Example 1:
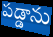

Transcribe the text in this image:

పడ్డాను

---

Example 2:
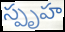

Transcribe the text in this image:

స్పృహ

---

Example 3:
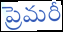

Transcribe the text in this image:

ప్రెమరీ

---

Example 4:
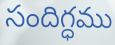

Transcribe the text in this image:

సందిగ్ధము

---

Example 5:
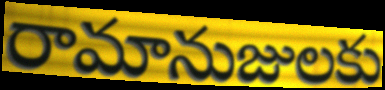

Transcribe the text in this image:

రామానుజులకు